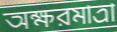
অক্ষরমাত্রা